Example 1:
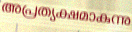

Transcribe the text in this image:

അപ്രത്യക്ഷമാകുന്നു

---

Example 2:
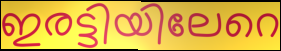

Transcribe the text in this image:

ഇരട്ടിയിലേറെ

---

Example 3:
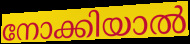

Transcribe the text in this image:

നോക്കിയാൽ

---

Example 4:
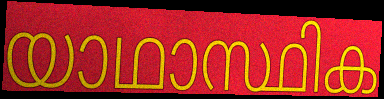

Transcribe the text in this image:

യാഥാസ്ഥിക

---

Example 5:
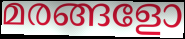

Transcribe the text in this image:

മരങ്ങളോ